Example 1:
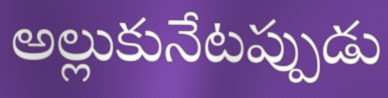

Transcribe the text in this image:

అల్లుకునేటప్పుడు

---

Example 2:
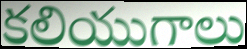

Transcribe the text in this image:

కలియుగాలు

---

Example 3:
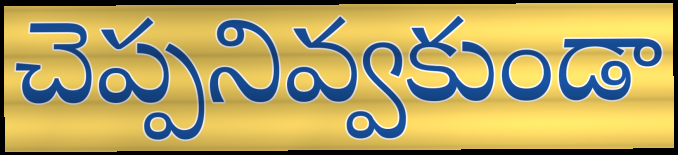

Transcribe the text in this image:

చెప్పనివ్వకుండా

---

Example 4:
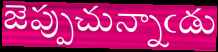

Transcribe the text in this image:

జెప్పుచున్నాఁడు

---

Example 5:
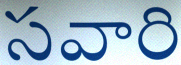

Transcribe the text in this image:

సవారి